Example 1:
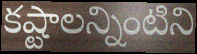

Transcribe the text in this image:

కష్టాలన్నింటిని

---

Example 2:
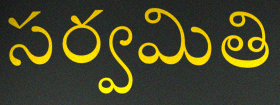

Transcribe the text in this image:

సర్వమితి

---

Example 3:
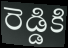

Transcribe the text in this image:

రెడ్డికి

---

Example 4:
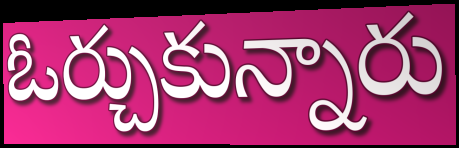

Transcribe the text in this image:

ఓర్చుకున్నారు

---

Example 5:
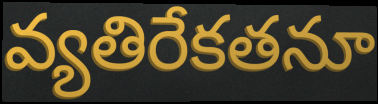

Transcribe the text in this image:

వ్యతిరేకతనూ